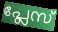
പ്ലേസ്